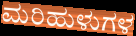
ಮರಿಹುಳುಗಳ